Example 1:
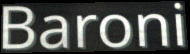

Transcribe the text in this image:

Baroni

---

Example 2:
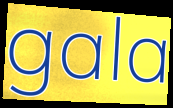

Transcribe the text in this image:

gala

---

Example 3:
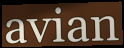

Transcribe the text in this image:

avian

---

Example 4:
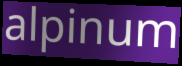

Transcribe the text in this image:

alpinum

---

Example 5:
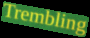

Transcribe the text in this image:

Trembling